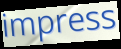
impress